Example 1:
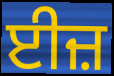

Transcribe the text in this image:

ਈਜ਼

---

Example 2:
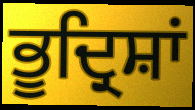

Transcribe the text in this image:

ਭੂਦ੍ਰਿਸ਼ਾਂ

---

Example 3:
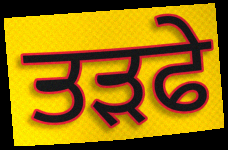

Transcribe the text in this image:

ਤੜਫੇ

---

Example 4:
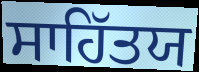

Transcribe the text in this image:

ਸਾਹਿੱਤਯ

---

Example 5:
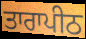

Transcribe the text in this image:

ਤਾਰਾਪੀਠ